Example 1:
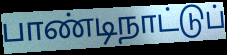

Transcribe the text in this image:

பாண்டிநாட்டுப்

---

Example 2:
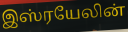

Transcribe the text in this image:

இஸ்ரயேலின்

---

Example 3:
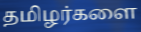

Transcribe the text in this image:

தமிழர்களை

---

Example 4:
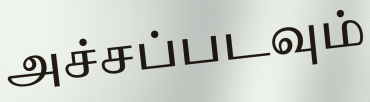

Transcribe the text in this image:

அச்சப்படவும்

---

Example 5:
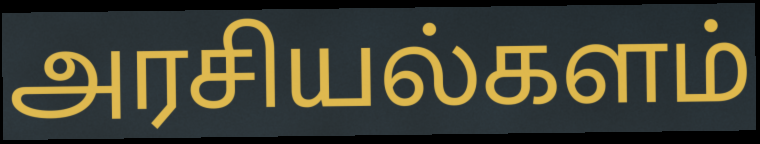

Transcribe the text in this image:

அரசியல்களம்